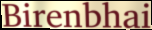
Birenbhai